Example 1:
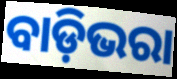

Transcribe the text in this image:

ବାଡ଼ିଭରା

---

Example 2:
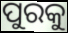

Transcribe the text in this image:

ପୁରକୁ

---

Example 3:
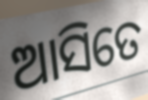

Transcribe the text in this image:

ଆସିତେ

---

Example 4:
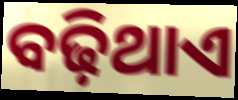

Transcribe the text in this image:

ବଢ଼ିଥାଏ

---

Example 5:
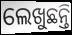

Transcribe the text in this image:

ଲେଖୁଛନ୍ତି